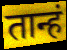
तान्हं